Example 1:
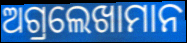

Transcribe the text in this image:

ଅଗ୍ରଲେଖାମାନ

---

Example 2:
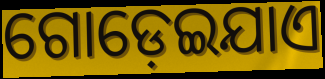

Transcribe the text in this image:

ଗୋଡ଼େଇଯାଏ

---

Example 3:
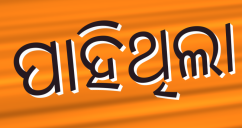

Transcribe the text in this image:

ପାହିଥିଲା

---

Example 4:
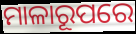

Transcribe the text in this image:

ମାଳାରୂପରେ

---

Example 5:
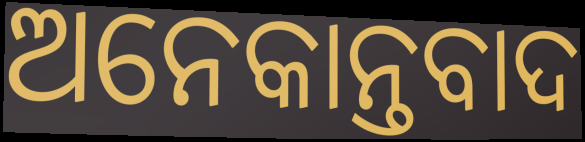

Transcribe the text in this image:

ଅନେକାନ୍ତବାଦ